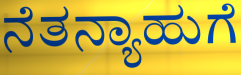
ನೆತನ್ಯಾಹುಗೆ